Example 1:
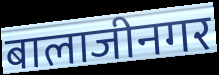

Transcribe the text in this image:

बालाजीनगर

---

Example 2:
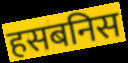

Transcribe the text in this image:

हसबनिस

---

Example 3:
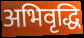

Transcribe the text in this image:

अभिवृद्धि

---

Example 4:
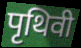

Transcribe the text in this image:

पृथिवी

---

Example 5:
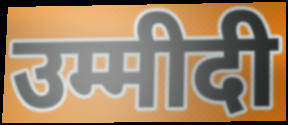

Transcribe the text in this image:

उम्मीदी